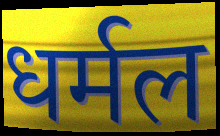
धर्मल